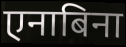
एनाबिना